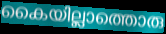
കൈയില്ലാത്തൊരു